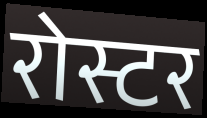
रोस्टर